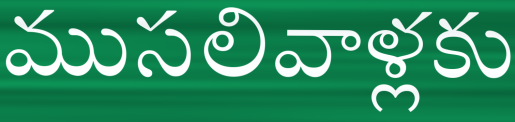
ముసలివాళ్లకు